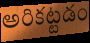
అరికట్టడం